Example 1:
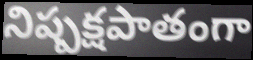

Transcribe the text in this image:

నిష్పక్షపాతంగా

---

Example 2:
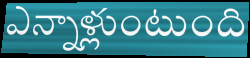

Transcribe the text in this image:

ఎన్నాళ్లుంటుంది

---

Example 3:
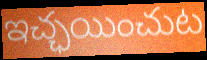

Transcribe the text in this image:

ఇచ్ఛయించుట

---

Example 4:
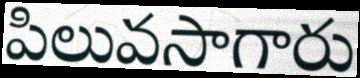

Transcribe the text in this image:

పిలువసాగారు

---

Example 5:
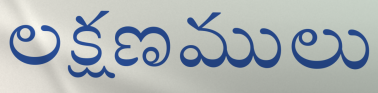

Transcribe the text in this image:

లక్షణములు